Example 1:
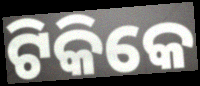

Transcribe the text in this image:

ଟିକିକେ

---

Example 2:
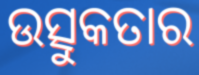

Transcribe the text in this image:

ଉତ୍ସୁକତାର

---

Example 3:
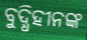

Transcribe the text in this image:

ବୁଦ୍ଧିହୀନଙ୍କ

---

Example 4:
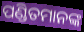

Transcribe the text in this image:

ପଣ୍ଡିତମାନଙ୍କ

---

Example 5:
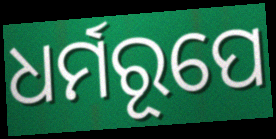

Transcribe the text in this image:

ଧର୍ମରୂପେ